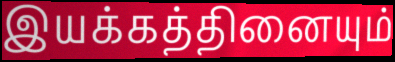
இயக்கத்தினையும்